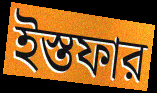
ইস্তফার